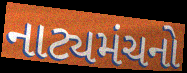
નાટ્યમંચનો